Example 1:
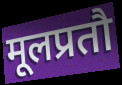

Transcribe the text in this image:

मूलप्रतौ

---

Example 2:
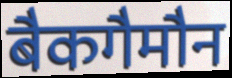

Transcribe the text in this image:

बैकगैमौन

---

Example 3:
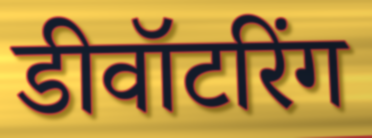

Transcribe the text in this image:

डीवॉटरिंग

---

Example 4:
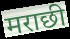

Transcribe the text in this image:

मराछी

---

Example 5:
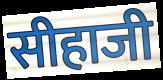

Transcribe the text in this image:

सीहाजी